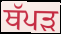
ਥੱਪੜ